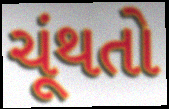
ચૂંથતો